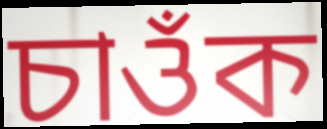
চাওঁক